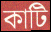
কাটি